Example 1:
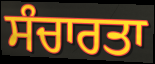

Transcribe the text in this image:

ਸੰਚਾਰਤਾ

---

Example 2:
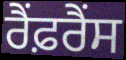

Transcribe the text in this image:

ਰੈਂਫ਼ਰੈਂਸ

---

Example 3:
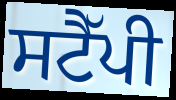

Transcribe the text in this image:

ਸਟੈੱਪੀ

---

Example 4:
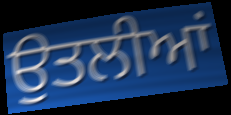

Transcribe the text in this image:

ਉਤਲੀਆਂ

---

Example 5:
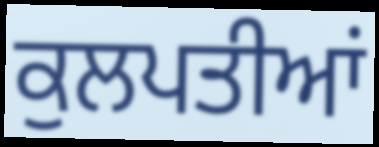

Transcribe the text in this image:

ਕੁਲਪਤੀਆਂ